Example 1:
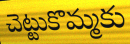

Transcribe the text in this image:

చెట్టుకొమ్మకు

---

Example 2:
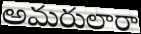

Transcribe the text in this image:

అమరులారా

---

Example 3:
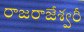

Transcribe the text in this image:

రాజరాజేశ్వరీ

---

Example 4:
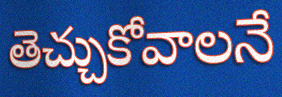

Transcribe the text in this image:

తెచ్చుకోవాలనే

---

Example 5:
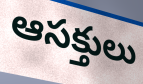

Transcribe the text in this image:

ఆసక్తులు